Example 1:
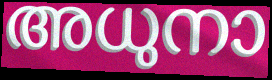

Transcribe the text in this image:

അധുനാ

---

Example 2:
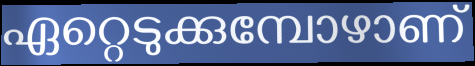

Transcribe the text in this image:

ഏറ്റെടുക്കുമ്പോഴാണ്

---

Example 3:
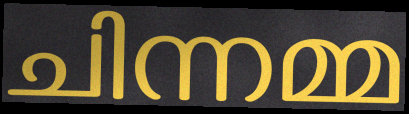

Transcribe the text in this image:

ചിന്നമ്മ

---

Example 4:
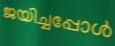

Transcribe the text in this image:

ജയിച്ചപ്പോൾ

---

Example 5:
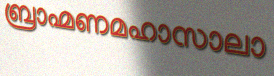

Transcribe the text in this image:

ബ്രാഹ്മണമഹാസാലാ